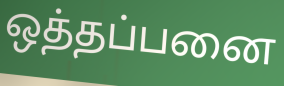
ஒத்தப்பனை